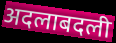
अदलाबदली